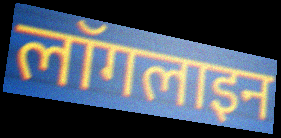
लॉगलाइन